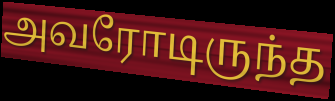
அவரோடிருந்த